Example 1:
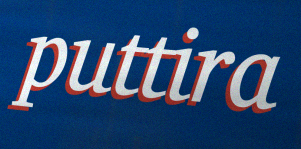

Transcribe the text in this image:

puttira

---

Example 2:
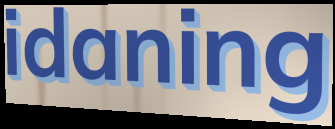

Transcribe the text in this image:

idaning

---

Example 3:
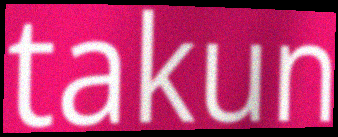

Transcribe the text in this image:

takun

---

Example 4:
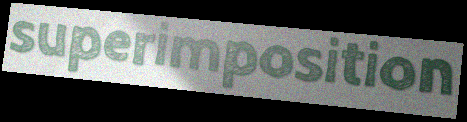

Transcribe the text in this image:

superimposition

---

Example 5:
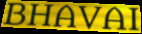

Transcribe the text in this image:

BHAVAI